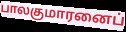
பாலகுமாரனைப்